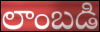
లాంబడి